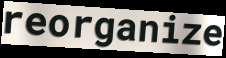
reorganize